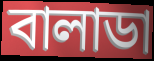
বালাডা